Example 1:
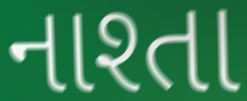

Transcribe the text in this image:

નાશ્તા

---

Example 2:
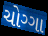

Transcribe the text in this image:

ચોગ્ગા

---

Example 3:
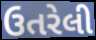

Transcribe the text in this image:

ઉતરેલી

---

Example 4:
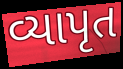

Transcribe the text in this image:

વ્યાપૃત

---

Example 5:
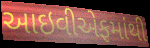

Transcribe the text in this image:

આઇવીએફમાંથી